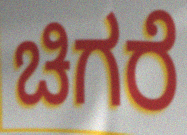
ಚಿಗರೆ